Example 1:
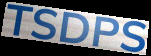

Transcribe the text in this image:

TSDPS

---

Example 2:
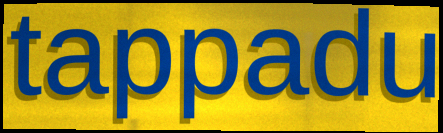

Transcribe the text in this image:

tappadu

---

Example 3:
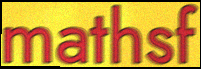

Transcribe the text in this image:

mathsf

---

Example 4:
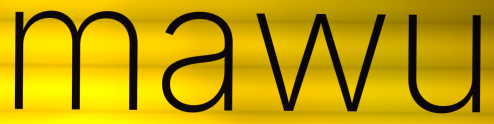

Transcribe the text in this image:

mawu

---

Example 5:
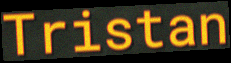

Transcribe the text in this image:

Tristan